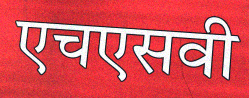
एचएसवी